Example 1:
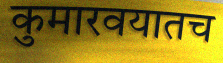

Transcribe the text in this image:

कुमारवयातच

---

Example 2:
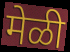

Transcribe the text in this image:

मेळी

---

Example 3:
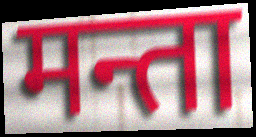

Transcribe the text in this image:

मन्ता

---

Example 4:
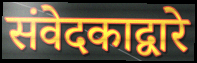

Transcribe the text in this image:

संवेदकाद्वारे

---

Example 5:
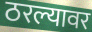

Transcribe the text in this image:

ठरल्यावर